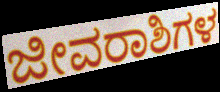
ಜೀವರಾಶಿಗಳ